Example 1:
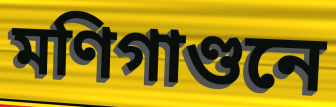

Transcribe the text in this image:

মণিগাণ্ডনে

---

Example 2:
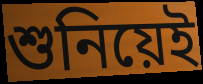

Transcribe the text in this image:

শুনিয়েই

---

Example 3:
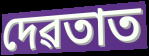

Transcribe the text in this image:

দেৱতাত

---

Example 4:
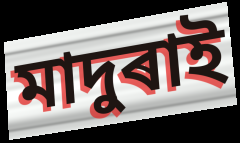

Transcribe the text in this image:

মাদুৰাই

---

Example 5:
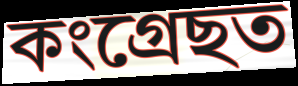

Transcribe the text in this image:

কংগ্ৰেছত